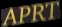
APRT